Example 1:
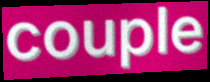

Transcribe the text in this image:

couple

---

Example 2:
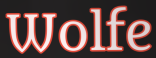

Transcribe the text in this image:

Wolfe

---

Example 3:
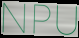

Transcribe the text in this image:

NPU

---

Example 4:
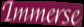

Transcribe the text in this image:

Immerse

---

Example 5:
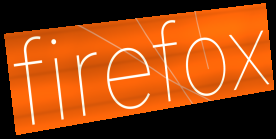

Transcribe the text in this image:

firefox